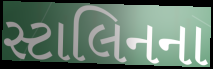
સ્ટાલિનના